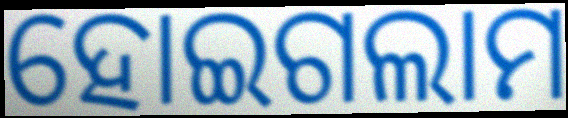
ହୋଇଗଲାମ